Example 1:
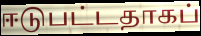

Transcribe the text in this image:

ஈடுபட்டதாகப்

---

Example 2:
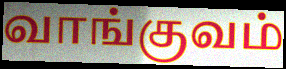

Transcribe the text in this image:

வாங்குவம்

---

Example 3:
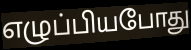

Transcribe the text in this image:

எழுப்பியபோது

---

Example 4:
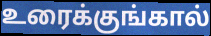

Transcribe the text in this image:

உரைக்குங்கால்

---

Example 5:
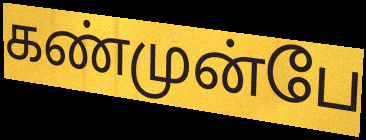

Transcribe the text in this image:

கண்முன்பே